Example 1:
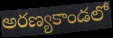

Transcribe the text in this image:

అరణ్యకాండలో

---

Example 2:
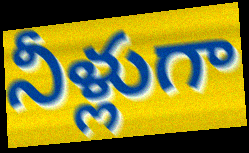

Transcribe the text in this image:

నీళ్లుగా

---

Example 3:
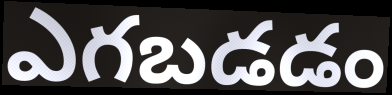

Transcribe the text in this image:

ఎగబడడం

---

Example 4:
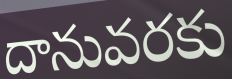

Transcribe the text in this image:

దానువరకు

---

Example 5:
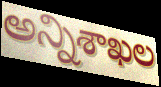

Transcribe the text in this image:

అన్నిశాఖల